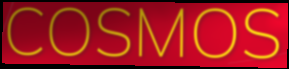
COSMOS